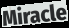
Miracle